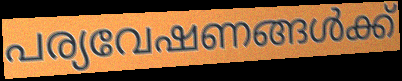
പര്യവേഷണങ്ങൾക്ക്